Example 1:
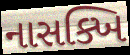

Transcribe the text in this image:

નાસક્ખિ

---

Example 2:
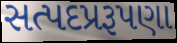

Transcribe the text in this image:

સત્પદપ્રરૂપણા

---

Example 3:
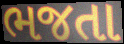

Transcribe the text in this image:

ભજતા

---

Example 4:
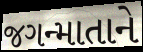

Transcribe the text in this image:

જગન્માતાને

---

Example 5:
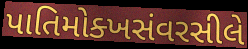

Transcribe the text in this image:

પાતિમોક્ખસંવરસીલે